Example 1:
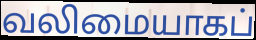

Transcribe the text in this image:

வலிமையாகப்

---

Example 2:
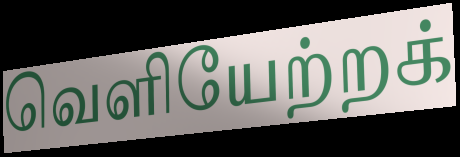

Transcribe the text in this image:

வெளியேற்றக்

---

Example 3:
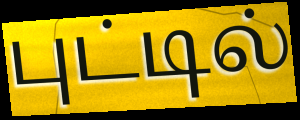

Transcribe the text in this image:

புட்டில்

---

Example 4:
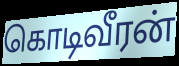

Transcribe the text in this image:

கொடிவீரன்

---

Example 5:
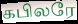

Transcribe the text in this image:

கபிலரே